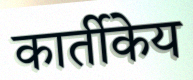
कार्तीकेय